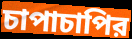
চাপাচাপির